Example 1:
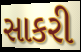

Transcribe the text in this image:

સાકરી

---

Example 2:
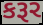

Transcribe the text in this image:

કરૂર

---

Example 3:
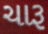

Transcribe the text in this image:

ચારૂ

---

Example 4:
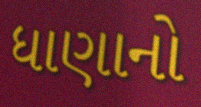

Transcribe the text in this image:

ધાણાનો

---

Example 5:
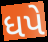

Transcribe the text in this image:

ધપે